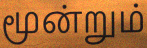
மூன்றும்